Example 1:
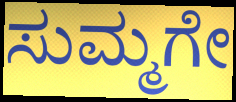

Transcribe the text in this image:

ಸುಮ್ಮಗೇ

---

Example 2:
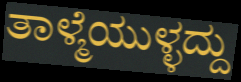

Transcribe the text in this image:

ತಾಳ್ಮೆಯುಳ್ಳದ್ದು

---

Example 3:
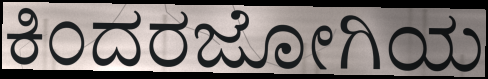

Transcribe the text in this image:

ಕಿಂದರಜೋಗಿಯ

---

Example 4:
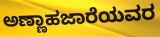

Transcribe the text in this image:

ಅಣ್ಣಾಹಜಾರೆಯವರ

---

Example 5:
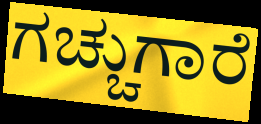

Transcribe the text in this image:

ಗಚ್ಚುಗಾರೆ